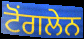
ਟੋਂਗਲੇਨ